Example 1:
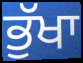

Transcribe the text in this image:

ਭੁੱਖਾ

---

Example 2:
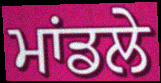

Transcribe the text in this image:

ਮਾਂਡਲੇ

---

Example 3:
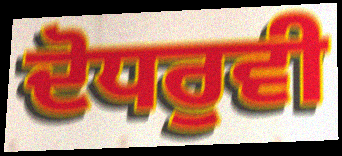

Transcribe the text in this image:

ਦੋਧਰੁਵੀ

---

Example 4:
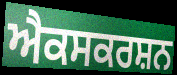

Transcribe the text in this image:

ਐਕਸਕਰਸ਼ਨ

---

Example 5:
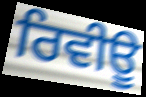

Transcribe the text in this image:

ਰਿਵੀਊ